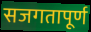
सजगतापूर्ण